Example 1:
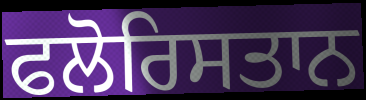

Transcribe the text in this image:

ਫਲੋਰਿਸਤਾਨ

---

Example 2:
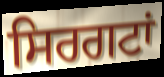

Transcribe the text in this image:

ਸਿਰਗਟਾਂ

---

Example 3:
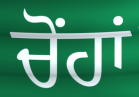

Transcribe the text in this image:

ਚੋਂਹਾਂ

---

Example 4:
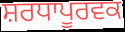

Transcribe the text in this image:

ਸ਼ਰਧਾਪੂਰਵਕ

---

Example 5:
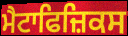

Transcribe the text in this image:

ਮੈਟਾਫਿਜ਼ਿਕਸ